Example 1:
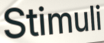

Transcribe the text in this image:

Stimuli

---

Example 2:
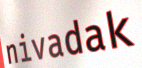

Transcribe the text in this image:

nivadak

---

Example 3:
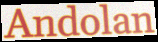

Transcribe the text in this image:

Andolan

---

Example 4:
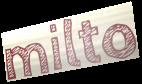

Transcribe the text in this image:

milto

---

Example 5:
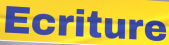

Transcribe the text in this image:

Ecriture